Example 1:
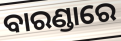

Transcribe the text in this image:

ବାରଣ୍ଡାରେ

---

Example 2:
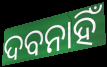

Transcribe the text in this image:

ଦବନାହିଁ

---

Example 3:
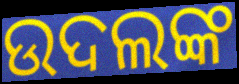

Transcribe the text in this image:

ଉଦଲଙ୍କ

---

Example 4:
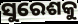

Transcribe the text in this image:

ସୁରେଶକୁ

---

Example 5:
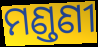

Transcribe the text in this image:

ମଣ୍ଡଣୀ